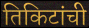
तिकिटांची